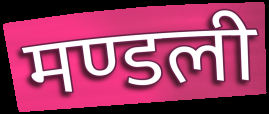
मण्डली